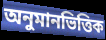
অনুমানভিত্তিক